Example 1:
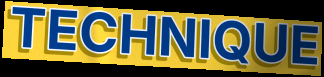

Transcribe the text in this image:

TECHNIQUE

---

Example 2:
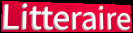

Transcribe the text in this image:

Litteraire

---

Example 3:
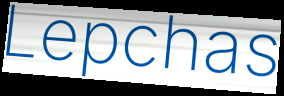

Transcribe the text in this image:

Lepchas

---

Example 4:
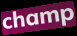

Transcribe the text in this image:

champ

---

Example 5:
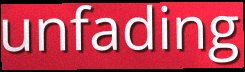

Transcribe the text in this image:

unfading